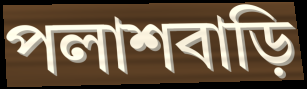
পলাশবাড়ি